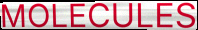
MOLECULES